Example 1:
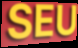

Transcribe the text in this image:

SEU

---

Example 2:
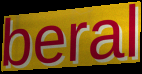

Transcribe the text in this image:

beral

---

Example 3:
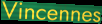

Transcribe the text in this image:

Vincennes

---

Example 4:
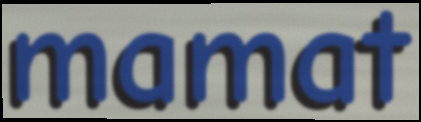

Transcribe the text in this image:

mamat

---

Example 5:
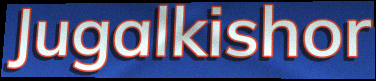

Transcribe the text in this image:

Jugalkishor